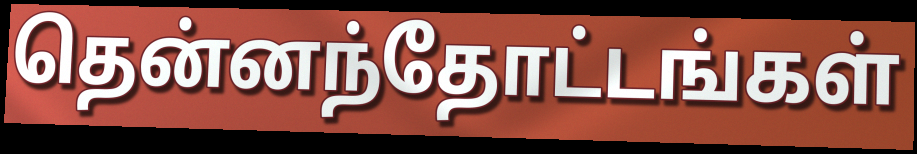
தென்னந்தோட்டங்கள்